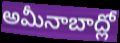
అమీనాబాద్లో